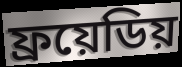
ফ্রয়েডিয়